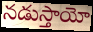
నడుస్తాయో